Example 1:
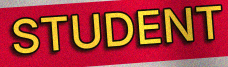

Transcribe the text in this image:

STUDENT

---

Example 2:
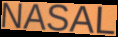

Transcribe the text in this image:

NASAL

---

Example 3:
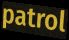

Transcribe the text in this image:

patrol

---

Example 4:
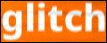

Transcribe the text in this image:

glitch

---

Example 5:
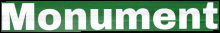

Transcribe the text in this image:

Monument